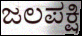
ಜಲಪಕ್ಷಿ